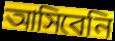
আসিবেনি